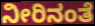
ನೀರಿನಂತೆ